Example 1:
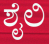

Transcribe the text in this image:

ಶೈಲಿ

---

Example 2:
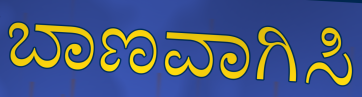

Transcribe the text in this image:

ಬಾಣವಾಗಿಸಿ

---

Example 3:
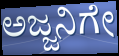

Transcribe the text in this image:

ಅಜ್ಜನಿಗೇ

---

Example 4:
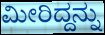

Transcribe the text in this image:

ಮೀರಿದ್ದನ್ನು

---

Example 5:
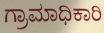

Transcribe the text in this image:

ಗ್ರಾಮಾಧಿಕಾರಿ